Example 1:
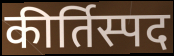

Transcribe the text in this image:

कीर्तिस्पद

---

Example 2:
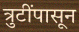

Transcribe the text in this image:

त्रुटींपासून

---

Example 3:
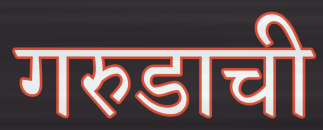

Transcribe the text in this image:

गरुडाची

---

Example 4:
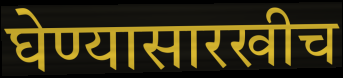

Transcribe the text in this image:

घेण्यासारखीच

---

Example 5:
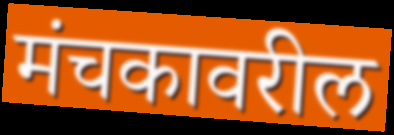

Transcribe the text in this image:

मंचकावरील